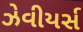
ઝેવીયર્સ